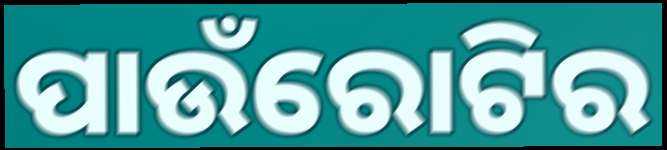
ପାଉଁରୋଟିର